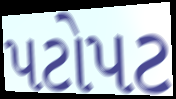
પટોપટ